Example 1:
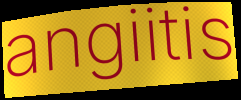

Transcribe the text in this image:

angiitis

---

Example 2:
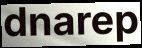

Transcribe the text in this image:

dnarep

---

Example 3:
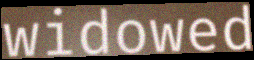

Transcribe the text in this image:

widowed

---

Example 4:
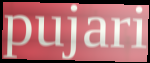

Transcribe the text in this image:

pujari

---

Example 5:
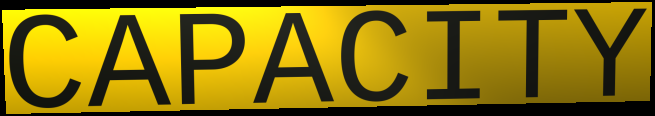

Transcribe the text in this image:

CAPACITY